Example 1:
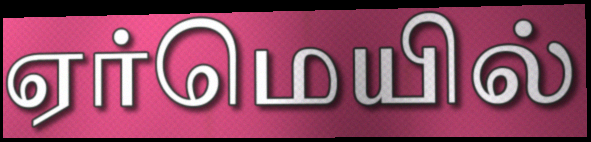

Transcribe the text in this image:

ஏர்மெயில்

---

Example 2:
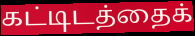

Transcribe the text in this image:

கட்டிடத்தைக்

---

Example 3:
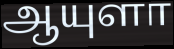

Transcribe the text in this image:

ஆயுளா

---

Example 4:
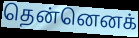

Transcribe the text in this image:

தென்னெனக்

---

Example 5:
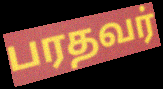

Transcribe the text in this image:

பரதவர்